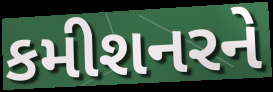
કમીશનરને